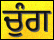
ਚੁੰਗ